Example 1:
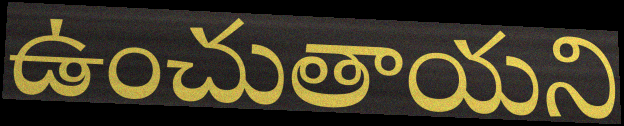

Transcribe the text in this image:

ఉంచుతాయని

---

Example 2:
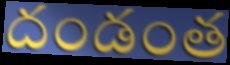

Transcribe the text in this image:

దండంత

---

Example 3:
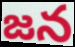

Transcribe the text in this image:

జన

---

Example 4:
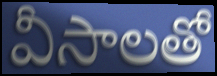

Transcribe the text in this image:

వీసాలతో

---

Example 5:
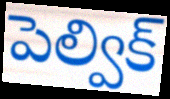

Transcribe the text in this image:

పెల్విక్